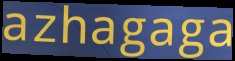
azhagaga